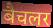
बैचलर